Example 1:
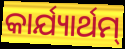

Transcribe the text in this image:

କାର୍ଯ୍ୟାର୍ଥମ୍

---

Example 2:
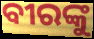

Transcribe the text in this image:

ବୀରଙ୍କୁ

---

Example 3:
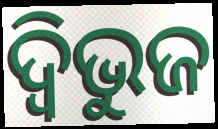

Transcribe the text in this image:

ଦ୍ଵିଭୁଜ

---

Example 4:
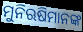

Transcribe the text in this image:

ମୁନିଋଷିମାନଙ୍କ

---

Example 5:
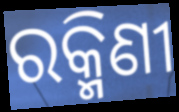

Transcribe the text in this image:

ରକ୍ମିଣୀ